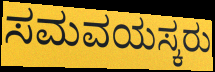
ಸಮವಯಸ್ಕರು